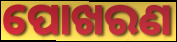
ପୋଖରଣ